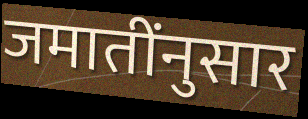
जमातींनुसार